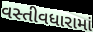
વસ્તીવધારામાં